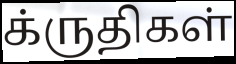
க்ருதிகள்